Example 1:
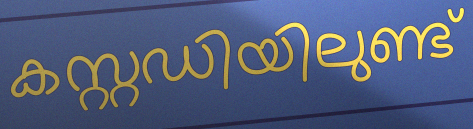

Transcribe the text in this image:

കസ്റ്റഡിയിലുണ്ട്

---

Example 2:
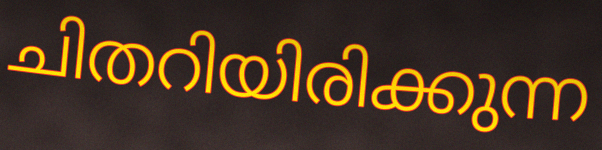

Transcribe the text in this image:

ചിതറിയിരിക്കുന്ന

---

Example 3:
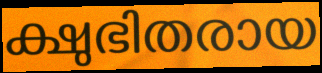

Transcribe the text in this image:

ക്ഷുഭിതരായ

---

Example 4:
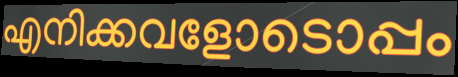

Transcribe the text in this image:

എനിക്കവളോടൊപ്പം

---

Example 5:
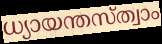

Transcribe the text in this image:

ധ്യായന്തസ്ത്വാം